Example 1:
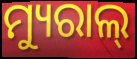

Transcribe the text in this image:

ମ୍ୟୁରାଲ୍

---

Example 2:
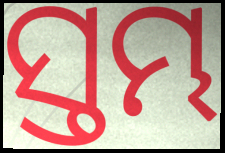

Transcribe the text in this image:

ସ୍ତମ୍ଭ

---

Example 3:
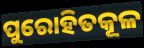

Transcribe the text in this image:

ପୁରୋହିତକୂଳ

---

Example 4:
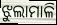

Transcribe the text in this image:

ଝୁଲାମାଳି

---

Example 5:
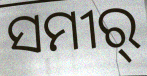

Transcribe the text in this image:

ସମୀର୍